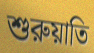
শুরুয়াতি